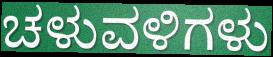
ಚಳುವಳಿಗಳು